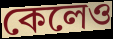
কেলেও